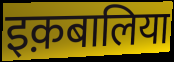
इक़बालिया